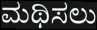
ಮಥಿಸಲು